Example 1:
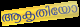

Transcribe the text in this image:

ആകൃതിയോ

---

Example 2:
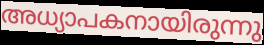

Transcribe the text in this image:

അധ്യാപകനായിരുന്നു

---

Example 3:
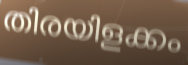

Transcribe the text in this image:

തിരയിളക്കം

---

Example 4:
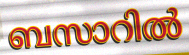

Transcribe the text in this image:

ബസാറിൽ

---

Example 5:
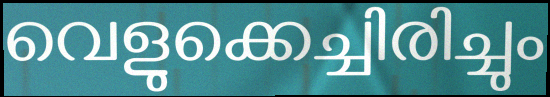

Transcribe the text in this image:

വെളുക്കെച്ചിരിച്ചും